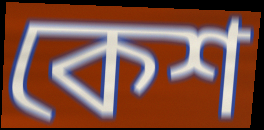
কেশ